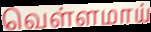
வெள்ளமாய்